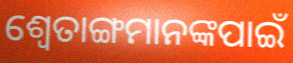
ଶ୍ୱେତାଙ୍ଗମାନଙ୍କପାଇଁ